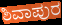
ಶಿವಾಪುರ